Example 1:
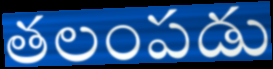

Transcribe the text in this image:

తలంపడు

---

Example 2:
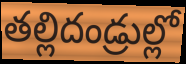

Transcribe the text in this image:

తల్లిదండ్రుల్లో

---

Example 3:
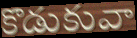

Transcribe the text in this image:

కొడుకువా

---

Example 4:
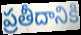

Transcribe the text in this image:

ప్రతీదానికి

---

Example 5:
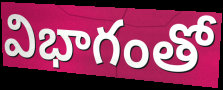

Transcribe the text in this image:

విభాగంతో